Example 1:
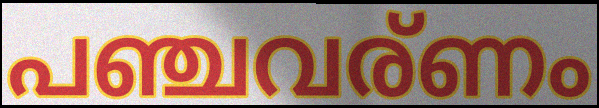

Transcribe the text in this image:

പഞ്ചവര്ണം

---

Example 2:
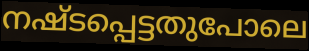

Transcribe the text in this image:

നഷ്ടപ്പെട്ടതുപോലെ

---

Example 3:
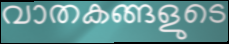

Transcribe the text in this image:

വാതകങ്ങളുടെ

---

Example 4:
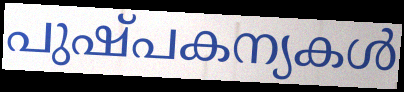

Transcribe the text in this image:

പുഷ്പകന്യകൾ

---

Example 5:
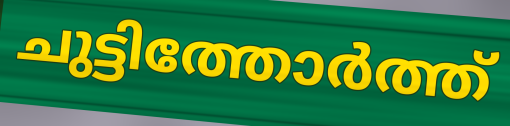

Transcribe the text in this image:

ചുട്ടിത്തോർത്ത്